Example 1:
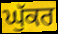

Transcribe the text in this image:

ਘੁੱਕਰ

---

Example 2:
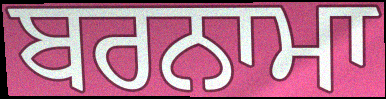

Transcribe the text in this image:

ਬਰਨਾਮਾ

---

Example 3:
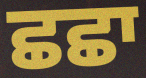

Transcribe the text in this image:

ਛਛਾ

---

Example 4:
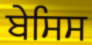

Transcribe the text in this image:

ਬੇਸਿਸ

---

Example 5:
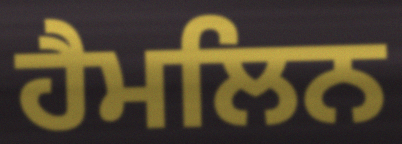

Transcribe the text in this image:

ਹੈਮਲਿਨ